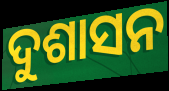
ଦୁଶାସନ